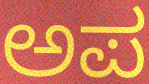
ಅಪ